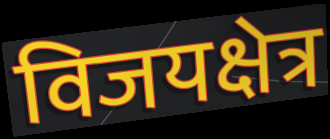
विजयक्षेत्र